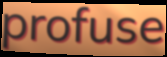
profuse